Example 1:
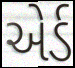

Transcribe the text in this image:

એર્ડ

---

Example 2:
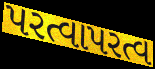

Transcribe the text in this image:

પરત્વાપરત્વ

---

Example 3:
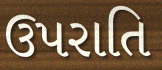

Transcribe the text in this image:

ઉપરાતિ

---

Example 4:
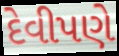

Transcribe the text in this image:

દેવીપણે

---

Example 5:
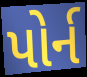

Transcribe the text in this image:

પોર્ન